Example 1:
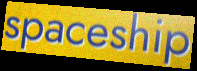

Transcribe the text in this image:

spaceship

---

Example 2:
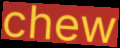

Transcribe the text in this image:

chew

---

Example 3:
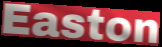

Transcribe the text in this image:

Easton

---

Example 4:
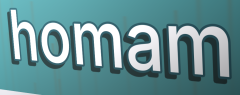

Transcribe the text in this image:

homam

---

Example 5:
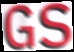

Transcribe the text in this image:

GS